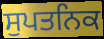
ਸੁਪਤਨਿਕ